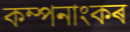
কম্পনাংকৰ